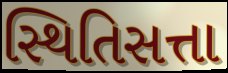
સ્થિતિસત્તા